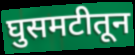
घुसमटीतून